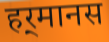
हर्मानस